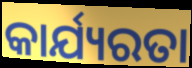
କାର୍ଯ୍ୟରତା